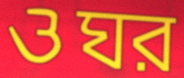
ওঘর